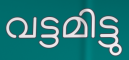
വട്ടമിട്ടു